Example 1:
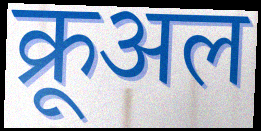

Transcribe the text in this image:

क्रूअल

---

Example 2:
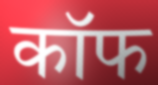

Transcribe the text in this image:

कॉफ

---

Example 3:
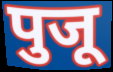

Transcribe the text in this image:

पुजू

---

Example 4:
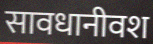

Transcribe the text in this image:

सावधानीवश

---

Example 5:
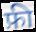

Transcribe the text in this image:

फ़ी